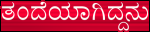
ತಂದೆಯಾಗಿದ್ದನು